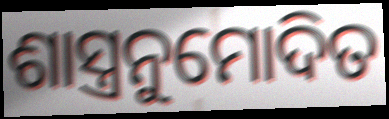
ଶାସ୍ତ୍ରନୁମୋଦିତ